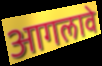
आगलावे